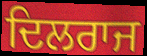
ਦਿਲਰਾਜ